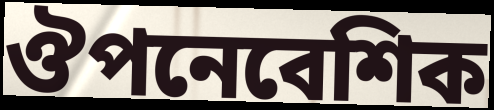
ঔপনেবেশিক